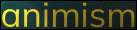
animism